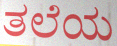
ತಲೆಯ